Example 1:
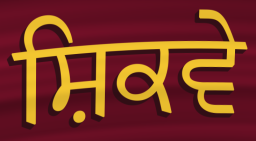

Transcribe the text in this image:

ਸ਼ਿਕਵੇ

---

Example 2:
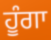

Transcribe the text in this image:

ਹੂੰਗਾ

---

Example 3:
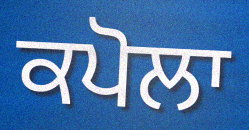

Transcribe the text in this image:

ਕਪੋਲਾ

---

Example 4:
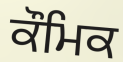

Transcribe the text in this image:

ਕੌਮਿਕ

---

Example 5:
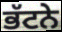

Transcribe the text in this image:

ਭੱਟਨੇ